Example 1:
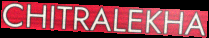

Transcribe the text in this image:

CHITRALEKHA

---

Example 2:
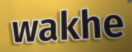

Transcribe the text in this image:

wakhe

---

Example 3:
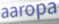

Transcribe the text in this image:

aaropa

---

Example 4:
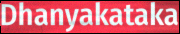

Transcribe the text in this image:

Dhanyakataka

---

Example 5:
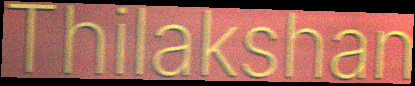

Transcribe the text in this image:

Thilakshan